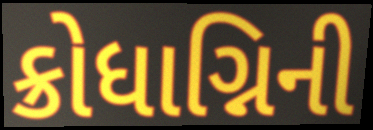
ક્રોધાગ્નિની